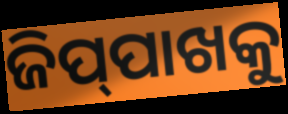
ଜିପ୍‌ପାଖକୁ